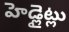
హెడ్లైట్లు